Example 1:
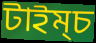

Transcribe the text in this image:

টাইম্‌চ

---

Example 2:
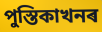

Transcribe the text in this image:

পুস্তিকাখনৰ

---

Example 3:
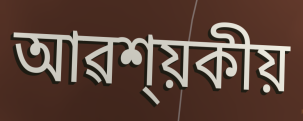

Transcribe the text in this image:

আৱশ্য়কীয়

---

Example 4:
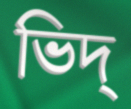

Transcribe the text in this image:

ভিদ্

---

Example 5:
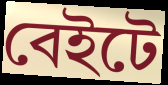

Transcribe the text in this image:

বেইটে